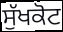
ਸੁੱਖਕੋਟ